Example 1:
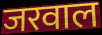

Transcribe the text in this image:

जरवाल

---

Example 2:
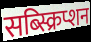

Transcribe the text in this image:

सब्स्क्रिप्शन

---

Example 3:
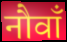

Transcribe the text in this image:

नौवाँ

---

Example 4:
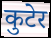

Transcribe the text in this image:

कुटेर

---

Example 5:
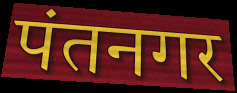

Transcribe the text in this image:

पंतनगर